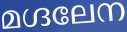
മഗ്ദലേന